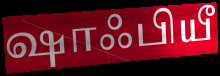
ஷாஃபியீ